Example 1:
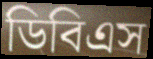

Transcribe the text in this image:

ডিবিএস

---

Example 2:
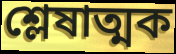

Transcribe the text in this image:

শ্লেষাত্মক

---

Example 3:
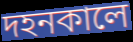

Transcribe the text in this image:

দহনকালে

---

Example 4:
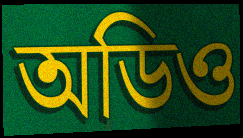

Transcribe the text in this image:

অডিও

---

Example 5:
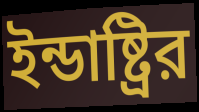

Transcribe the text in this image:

ইন্ডাষ্ট্রির